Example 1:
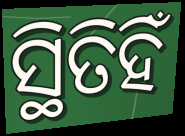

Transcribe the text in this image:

ସ୍ଥିତିହିଁ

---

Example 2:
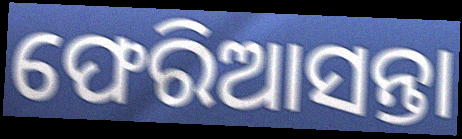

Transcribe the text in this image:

ଫେରିଆସନ୍ତା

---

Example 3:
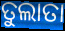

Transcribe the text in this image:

ତୁଲାତା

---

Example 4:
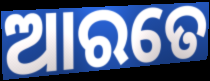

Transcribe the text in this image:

ଆରତେ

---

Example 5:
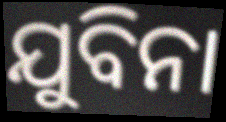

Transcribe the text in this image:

ଯୁବିନା